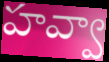
హవ్వా